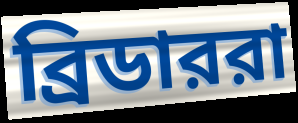
ব্রিডাররা